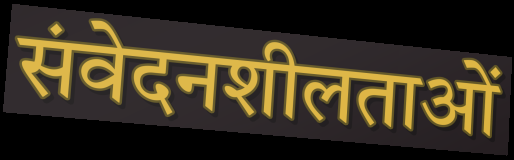
संवेदनशीलताओं